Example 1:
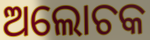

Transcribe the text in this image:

ଅଲୋଚକ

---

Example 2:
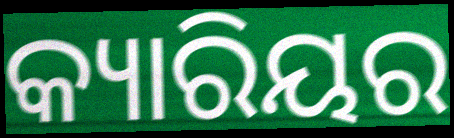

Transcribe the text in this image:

କ୍ୟାରିୟର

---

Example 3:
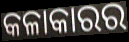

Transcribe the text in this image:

କଳାକାରର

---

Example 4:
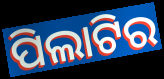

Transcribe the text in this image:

ପିଲାଟିର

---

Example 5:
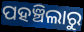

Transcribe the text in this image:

ପହଞ୍ଚିଲାରୁ